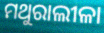
ମଥୁରାଲୀଳା